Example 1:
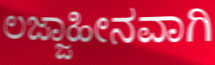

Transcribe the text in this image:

ಲಜ್ಜಾಹೀನವಾಗಿ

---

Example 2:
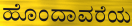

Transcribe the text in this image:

ಹೊಂದಾವರೆಯ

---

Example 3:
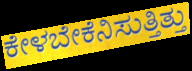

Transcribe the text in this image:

ಕೇಳಬೇಕೆನಿಸುತ್ತಿತ್ತು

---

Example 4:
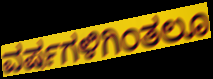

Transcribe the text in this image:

ವರ್ಷಗಳಿಗಿಂತಲೂ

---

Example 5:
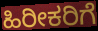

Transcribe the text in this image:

ಹಿರೀಕರಿಗೆ